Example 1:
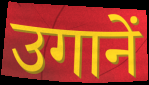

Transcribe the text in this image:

उगानें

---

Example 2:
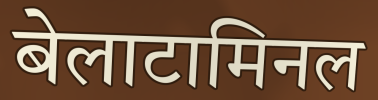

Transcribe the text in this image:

बेलाटामिनल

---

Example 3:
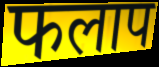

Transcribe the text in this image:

फलाप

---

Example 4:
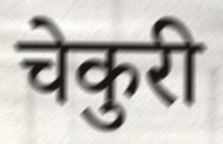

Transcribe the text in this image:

चेकुरी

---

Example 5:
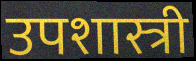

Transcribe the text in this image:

उपशास्त्री